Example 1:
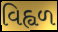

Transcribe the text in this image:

વિહ્વળ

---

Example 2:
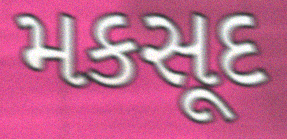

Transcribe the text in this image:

મકસૂદ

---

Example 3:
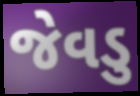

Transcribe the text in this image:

જેવડુ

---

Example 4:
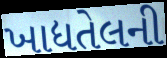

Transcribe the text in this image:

ખાદ્યતેલની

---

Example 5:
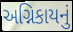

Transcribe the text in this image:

અગ્નિકાયનું